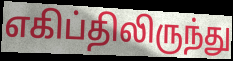
எகிப்திலிருந்து